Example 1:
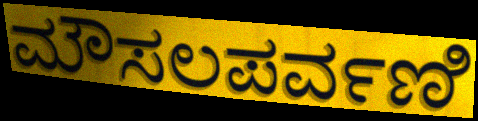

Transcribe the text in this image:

ಮೌಸಲಪರ್ವಣಿ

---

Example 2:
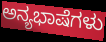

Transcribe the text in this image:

ಅನ್ಯಭಾಷೆಗಳು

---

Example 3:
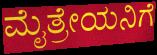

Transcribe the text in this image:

ಮೈತ್ರೇಯನಿಗೆ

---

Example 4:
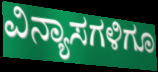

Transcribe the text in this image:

ವಿನ್ಯಾಸಗಳಿಗೂ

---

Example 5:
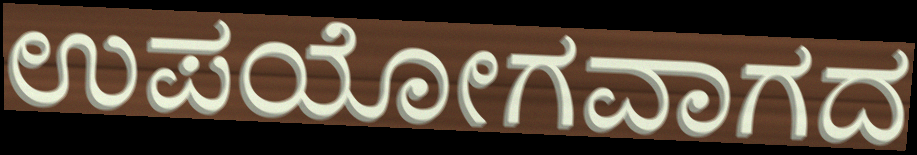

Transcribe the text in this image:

ಉಪಯೋಗವಾಗದ